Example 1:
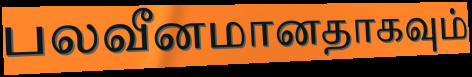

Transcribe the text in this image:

பலவீனமானதாகவும்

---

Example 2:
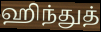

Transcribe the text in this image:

ஹிந்துத்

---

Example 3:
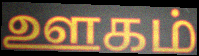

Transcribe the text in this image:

ஊகம்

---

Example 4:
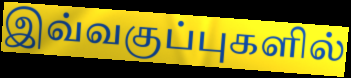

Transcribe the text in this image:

இவ்வகுப்புகளில்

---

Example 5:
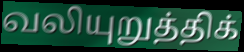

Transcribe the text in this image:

வலியுறுத்திக்